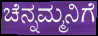
ಚೆನ್ನಮ್ಮನಿಗೆ